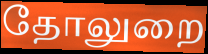
தோலுறை